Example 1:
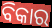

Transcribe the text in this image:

ବିକାର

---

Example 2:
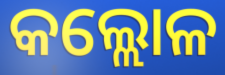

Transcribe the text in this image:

କଲ୍ଲୋଳ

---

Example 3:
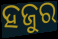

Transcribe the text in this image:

ହଜୁର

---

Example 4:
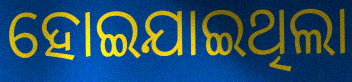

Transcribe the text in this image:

ହୋଇଯାଇଥିଲା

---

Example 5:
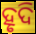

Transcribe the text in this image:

ହୃଦି